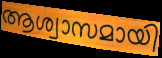
ആശ്വാസമായി